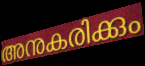
അനുകരിക്കും